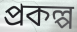
প্রকল্প